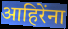
आहिरेंना